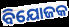
ବିଯୋଜକ